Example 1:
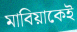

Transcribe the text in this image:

মাবিয়াকেই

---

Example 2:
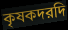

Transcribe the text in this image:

কৃষকদরদি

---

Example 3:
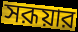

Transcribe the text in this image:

সরূয়ার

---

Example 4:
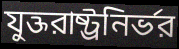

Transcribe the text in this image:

যুক্তরাষ্ট্রনির্ভর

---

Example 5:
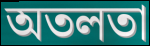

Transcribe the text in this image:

অতলতা